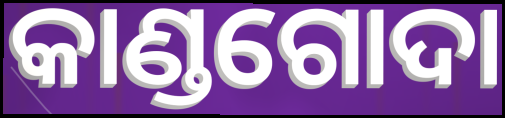
କାଣ୍ଡଗୋଦା